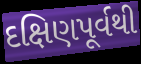
દક્ષિણપૂર્વથી